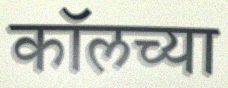
कॉलच्या